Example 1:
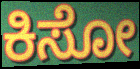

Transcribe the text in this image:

ಕಿಸೋ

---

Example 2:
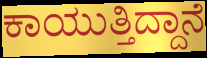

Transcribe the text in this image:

ಕಾಯುತ್ತಿದ್ದಾನೆ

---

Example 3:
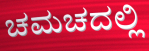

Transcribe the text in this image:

ಚಮಚದಲ್ಲಿ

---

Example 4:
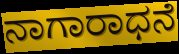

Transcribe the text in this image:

ನಾಗಾರಾಧನೆ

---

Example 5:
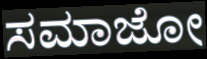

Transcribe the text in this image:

ಸಮಾಜೋ